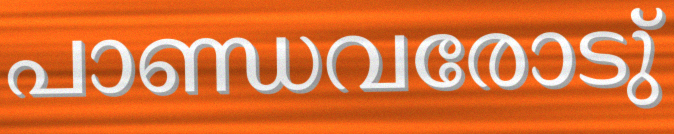
പാണ്ഡവരോടു്